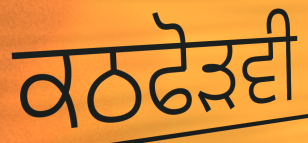
ਕਠਫੋੜਵੀ